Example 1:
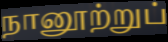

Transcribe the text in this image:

நானூற்றுப்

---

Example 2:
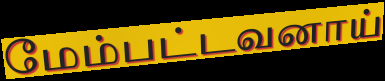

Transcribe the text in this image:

மேம்பட்டவனாய்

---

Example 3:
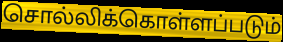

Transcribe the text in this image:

சொல்லிக்கொள்ளப்படும்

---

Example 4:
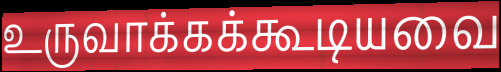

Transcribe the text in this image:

உருவாக்கக்கூடியவை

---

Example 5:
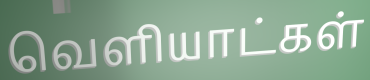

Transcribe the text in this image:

வெளியாட்கள்